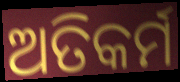
ଅତିକର୍ମ